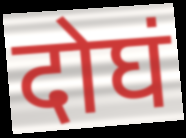
दोघं